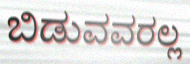
ಬಿಡುವವರಲ್ಲ